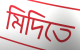
মিদিতে